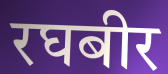
रघबीर